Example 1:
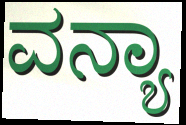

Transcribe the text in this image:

ವನ್ಯಾ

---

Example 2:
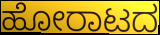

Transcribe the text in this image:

ಹೋರಾಟದ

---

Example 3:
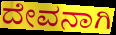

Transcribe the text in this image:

ದೇವನಾಗಿ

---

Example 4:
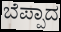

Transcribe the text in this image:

ಬೆಪ್ಪಾದ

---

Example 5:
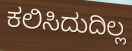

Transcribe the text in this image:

ಕಲಿಸಿದುದಿಲ್ಲ